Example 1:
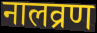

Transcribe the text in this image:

नालव्रण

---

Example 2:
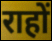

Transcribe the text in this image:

राहों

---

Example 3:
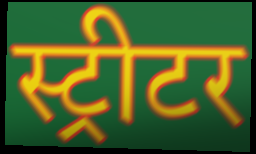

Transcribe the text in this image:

स्ट्रीटर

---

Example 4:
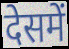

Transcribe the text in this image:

देसमें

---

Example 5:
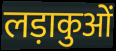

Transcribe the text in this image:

लड़ाकुओं